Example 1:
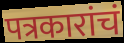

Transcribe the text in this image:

पत्रकारांचं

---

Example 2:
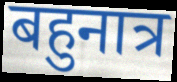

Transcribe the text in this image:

बहुनात्र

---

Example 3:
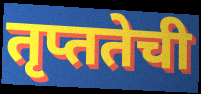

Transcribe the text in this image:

तृप्ततेची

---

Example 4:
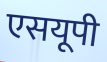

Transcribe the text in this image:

एसयूपी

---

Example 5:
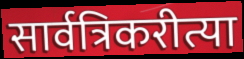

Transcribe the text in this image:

सार्वत्रिकरीत्या